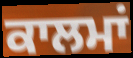
ਕਾਲਮਾਂ